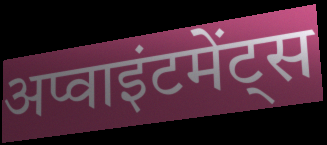
अप्वाइंटमेंट्स